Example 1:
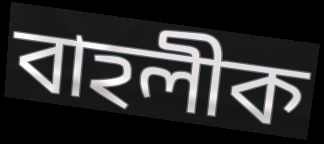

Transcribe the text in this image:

বাহলীক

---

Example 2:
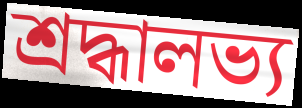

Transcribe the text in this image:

শ্রদ্ধালভ্য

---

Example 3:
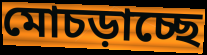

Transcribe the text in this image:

মোচড়াচ্ছে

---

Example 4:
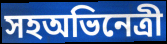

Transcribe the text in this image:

সহঅভিনেত্রী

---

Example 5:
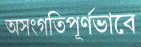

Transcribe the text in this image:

অসংগতিপূর্ণভাবে